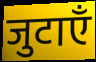
जुटाएँ